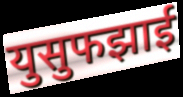
युसुफझाई